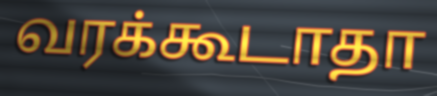
வரக்கூடாதா